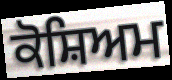
ਕੋਸ਼ਿਅਮ